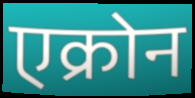
एक्रोन